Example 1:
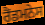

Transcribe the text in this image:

ਰੈਂਡਮਨੇਸ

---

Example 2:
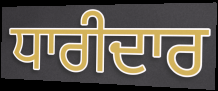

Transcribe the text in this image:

ਧਾਰੀਦਾਰ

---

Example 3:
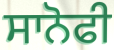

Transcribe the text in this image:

ਸਾਨੋਫੀ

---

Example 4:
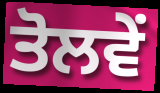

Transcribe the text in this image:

ਤੋਲਵੇਂ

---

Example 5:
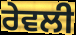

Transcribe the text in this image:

ਰੇਵਲੀ